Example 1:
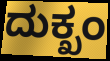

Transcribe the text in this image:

ದುಕ್ಖಂ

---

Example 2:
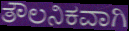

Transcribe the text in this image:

ತೌಲನಿಕವಾಗಿ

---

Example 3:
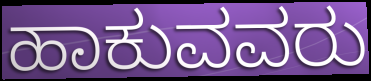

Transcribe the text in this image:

ಹಾಕುವವರು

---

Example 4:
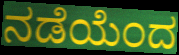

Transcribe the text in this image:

ನಡೆಯೆಂದ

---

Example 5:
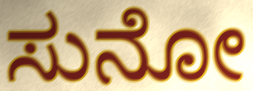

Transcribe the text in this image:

ಸುನೋ